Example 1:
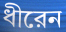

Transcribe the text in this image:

ধীরেন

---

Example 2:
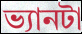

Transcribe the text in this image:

ভ্যানটা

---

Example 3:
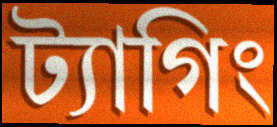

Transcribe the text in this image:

ট্যাগিং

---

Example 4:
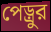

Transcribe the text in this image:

পেড়্রুর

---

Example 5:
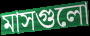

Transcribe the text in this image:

মাসগুলো